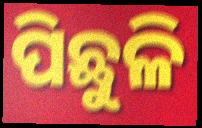
ପିଛୁଳି